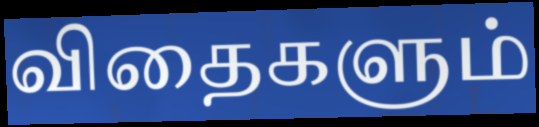
விதைகளும்